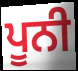
ਪੂਨੀ